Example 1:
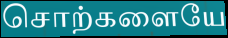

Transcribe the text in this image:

சொற்களையே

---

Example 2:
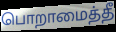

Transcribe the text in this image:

பொறாமைத்தீ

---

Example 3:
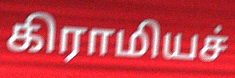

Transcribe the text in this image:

கிராமியச்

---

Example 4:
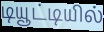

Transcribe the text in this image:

டியூட்டியில்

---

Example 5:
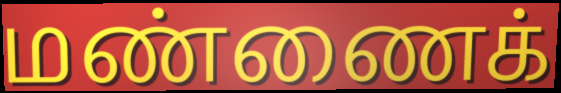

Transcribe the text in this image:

மண்ணைக்